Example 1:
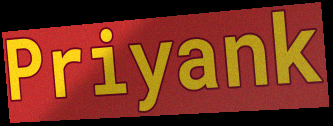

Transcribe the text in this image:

Priyank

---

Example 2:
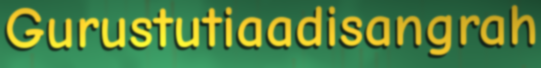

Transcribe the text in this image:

Gurustutiaadisangrah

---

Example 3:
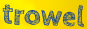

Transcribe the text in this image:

trowel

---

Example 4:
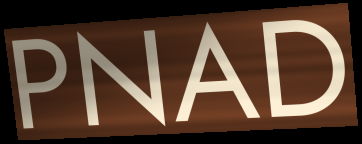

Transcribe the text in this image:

PNAD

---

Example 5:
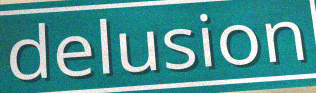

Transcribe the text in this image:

delusion